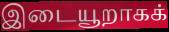
இடையூறாகக்